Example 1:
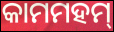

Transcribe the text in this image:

କାମମହମ୍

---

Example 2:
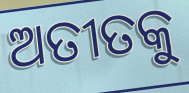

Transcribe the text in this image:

ଅତୀତକୁ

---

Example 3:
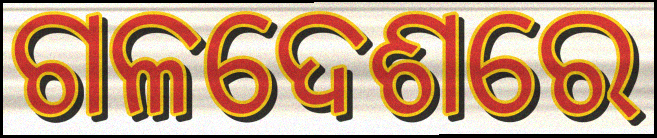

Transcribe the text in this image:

ଗଳଦେଶରେ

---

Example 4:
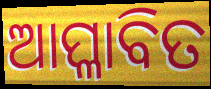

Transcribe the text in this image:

ଆପ୍ଳାବିତ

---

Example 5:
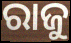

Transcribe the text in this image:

ରାଜୁ